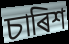
চাৰিশ